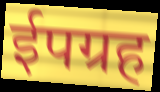
ईपग्रह